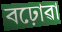
বঢ়োৱা